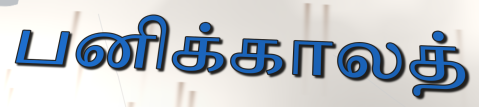
பனிக்காலத்